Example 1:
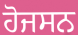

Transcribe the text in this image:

ਹੋਜਸਨ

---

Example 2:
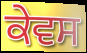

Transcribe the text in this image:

ਕੇਵਸ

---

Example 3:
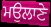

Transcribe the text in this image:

ਮਉਲਾਣੇ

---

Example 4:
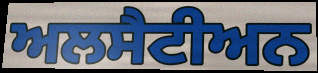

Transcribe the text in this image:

ਅਲਸੈਟੀਅਨ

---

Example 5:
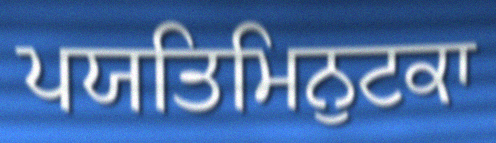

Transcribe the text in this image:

ਪਯਤਿਮਿਨੁਟਕਾ